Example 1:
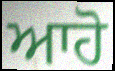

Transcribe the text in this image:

ਆਹੋ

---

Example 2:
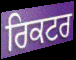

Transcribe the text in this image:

ਰਿਕਟਰ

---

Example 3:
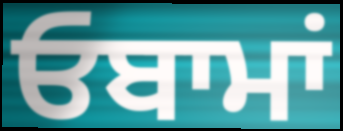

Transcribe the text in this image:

ਓਬਾਮਾਂ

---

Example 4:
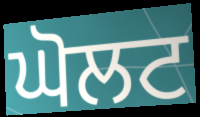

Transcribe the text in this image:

ਘੋਲਟ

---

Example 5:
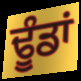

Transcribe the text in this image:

ਢੂੰਡਾਂ